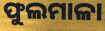
ଫୁଲମାଳା